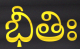
భీతిః